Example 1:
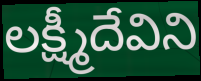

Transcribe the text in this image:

లక్ష్మీదేవిని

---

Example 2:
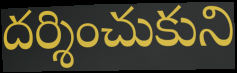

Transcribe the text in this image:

దర్శించుకుని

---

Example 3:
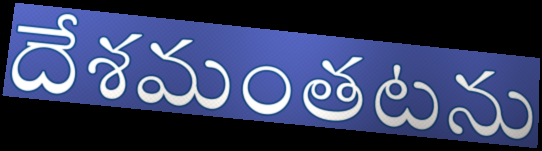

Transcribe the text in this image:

దేశమంతటను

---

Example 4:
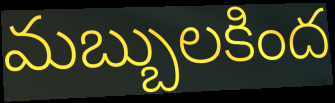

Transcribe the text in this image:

మబ్బులకింద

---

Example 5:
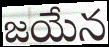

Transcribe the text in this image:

జయేన